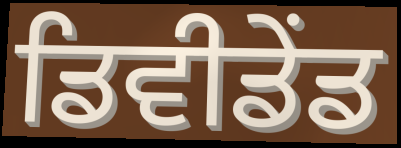
ਡਿਵੀਡੇਂਡ